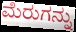
ಮೆರುಗನ್ನು